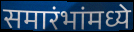
समारंभांमध्ये